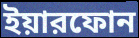
ইয়ারফোন